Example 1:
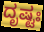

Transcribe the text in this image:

ದೃಷ್ಟಃ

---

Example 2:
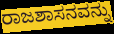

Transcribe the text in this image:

ರಾಜಶಾಸನವನ್ನು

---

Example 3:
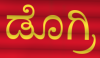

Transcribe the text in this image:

ಡೊಗ್ರಿ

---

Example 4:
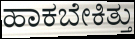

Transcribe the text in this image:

ಹಾಕಬೇಕಿತ್ತು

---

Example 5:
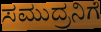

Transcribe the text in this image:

ಸಮುದ್ರನಿಗೆ